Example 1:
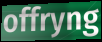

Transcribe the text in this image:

offryng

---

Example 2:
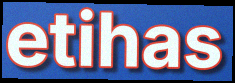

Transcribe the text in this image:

etihas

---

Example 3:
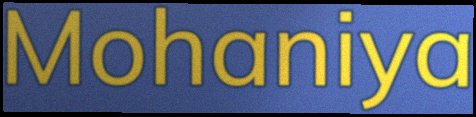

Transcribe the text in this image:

Mohaniya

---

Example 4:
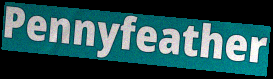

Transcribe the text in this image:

Pennyfeather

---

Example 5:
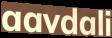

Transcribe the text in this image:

aavdali